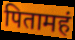
पितामहं